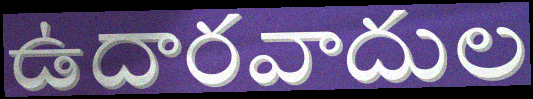
ఉదారవాదుల